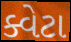
ક્વેટા